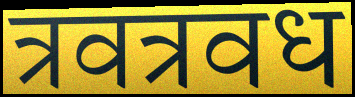
त्रवत्रवध